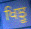
ਖਿਝੂ